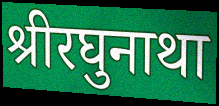
श्रीरघुनाथा